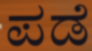
ಪಡೆ